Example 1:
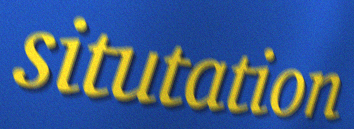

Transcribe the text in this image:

situtation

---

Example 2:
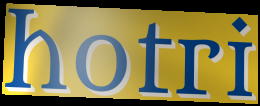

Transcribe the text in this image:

hotri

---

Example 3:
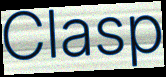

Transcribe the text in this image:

Clasp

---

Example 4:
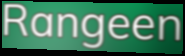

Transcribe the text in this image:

Rangeen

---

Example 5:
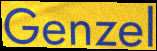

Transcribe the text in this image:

Genzel